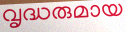
വൃദ്ധരുമായ